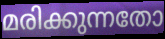
മരിക്കുന്നതോ